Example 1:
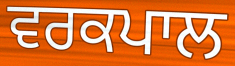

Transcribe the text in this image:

ਵਰਕਪਾਲ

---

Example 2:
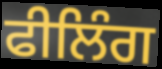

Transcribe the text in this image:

ਫੀਲਿੰਗ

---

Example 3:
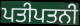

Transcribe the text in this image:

ਪਤੀਪਤਨੀ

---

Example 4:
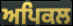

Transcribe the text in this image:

ਅਪਿਕਲ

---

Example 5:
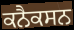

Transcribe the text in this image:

ਕਨੈਕਸਨ